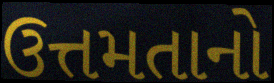
ઉત્તમતાનો